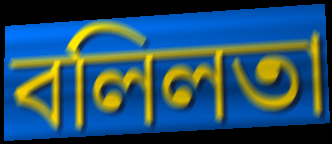
বলিলতা